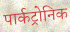
पार्कट्रोनिक